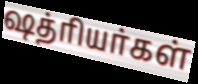
ஷத்ரியர்கள்